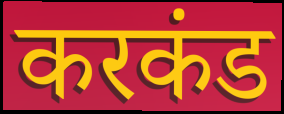
करकंड